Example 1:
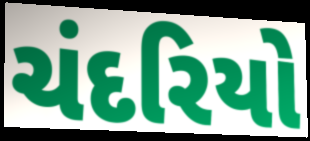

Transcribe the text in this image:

ચંદરિયો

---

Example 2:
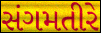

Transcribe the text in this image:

સંગમતીરે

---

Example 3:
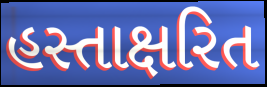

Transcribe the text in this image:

હસ્તાક્ષરિત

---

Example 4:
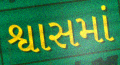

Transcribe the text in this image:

શ્વાસમાં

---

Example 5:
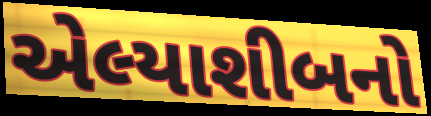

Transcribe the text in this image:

એલ્યાશીબનો